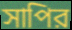
সাপির